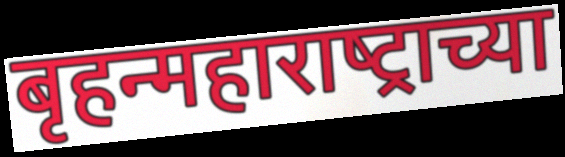
बृहन्महाराष्ट्राच्या